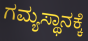
ಗಮ್ಯಸ್ಥಾನಕ್ಕೆ